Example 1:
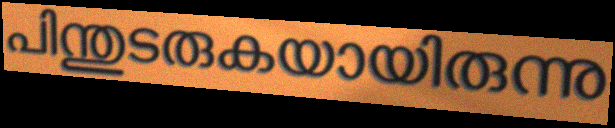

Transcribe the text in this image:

പിന്തുടരുകയായിരുന്നു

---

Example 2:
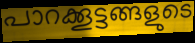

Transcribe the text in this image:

പാറക്കൂട്ടങ്ങളുടെ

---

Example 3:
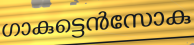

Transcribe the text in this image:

ഗാകുട്ടെൻസോകു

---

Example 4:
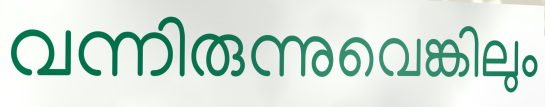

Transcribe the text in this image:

വന്നിരുന്നുവെങ്കിലും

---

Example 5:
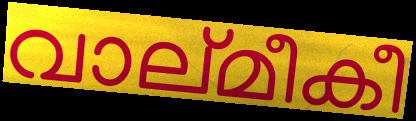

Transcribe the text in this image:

വാല്മീകീ